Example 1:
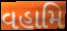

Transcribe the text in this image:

વહામિ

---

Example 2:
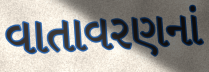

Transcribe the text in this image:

વાતાવરણનાં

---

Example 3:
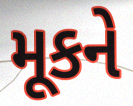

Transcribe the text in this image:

મૂકને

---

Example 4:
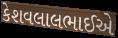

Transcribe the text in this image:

કેશવલાલભાઈએ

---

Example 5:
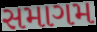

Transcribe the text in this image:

સમાગમ